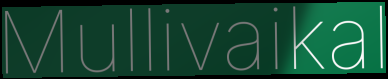
Mullivaikal